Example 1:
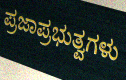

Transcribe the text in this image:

ಪ್ರಜಾಪ್ರಭುತ್ವಗಳು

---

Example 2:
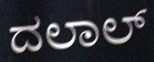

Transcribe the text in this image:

ದಲಾಲ್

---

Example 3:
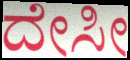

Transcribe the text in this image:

ದೇಸೀ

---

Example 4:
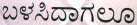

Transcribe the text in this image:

ಬಳಸಿದಾಗಲೂ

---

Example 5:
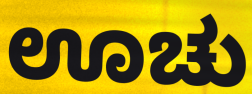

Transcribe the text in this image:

ಊಚು